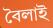
বৈলাই